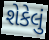
શેકેલું